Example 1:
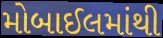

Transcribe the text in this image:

મોબાઈલમાંથી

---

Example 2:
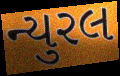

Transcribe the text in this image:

ન્યુરલ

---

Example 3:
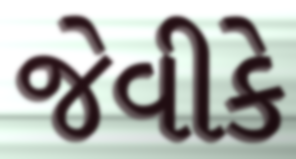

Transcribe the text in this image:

જેવીકે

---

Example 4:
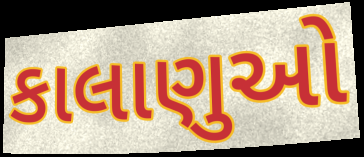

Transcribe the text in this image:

કાલાણુઓ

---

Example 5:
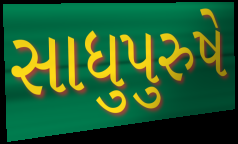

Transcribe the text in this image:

સાધુપુરુષે